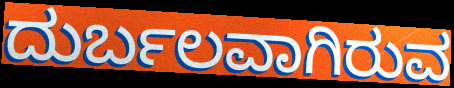
ದುರ್ಬಲವಾಗಿರುವ